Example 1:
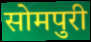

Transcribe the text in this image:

सोमपुरी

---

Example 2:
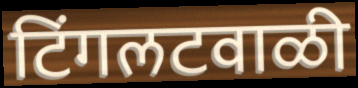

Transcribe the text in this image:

टिंगलटवाळी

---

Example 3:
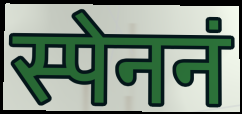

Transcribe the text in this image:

स्पेननं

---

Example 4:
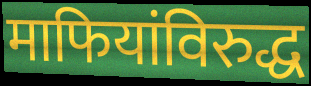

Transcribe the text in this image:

माफियांविरुद्ध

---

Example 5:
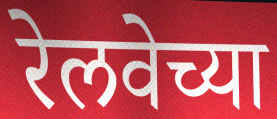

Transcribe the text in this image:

रेलवेच्या